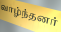
வாழ்ந்தனர்